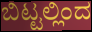
ಬಿಟ್ಟಲ್ಲಿಂದ